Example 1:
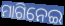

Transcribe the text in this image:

ମାଗିନେଇ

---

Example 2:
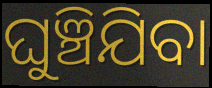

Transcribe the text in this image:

ଘୁଞ୍ଚିଯିବା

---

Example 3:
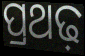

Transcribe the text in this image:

ପ୍ରଥଢ଼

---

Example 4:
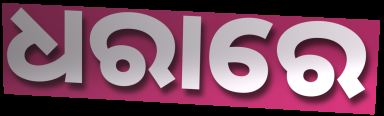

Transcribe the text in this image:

ଧରାରେ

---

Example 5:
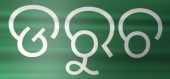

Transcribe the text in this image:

ଡରୁଚ